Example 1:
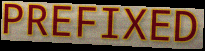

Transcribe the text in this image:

PREFIXED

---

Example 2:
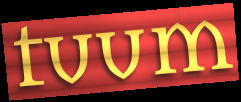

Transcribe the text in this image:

tuum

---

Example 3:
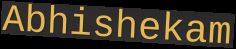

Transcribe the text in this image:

Abhishekam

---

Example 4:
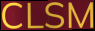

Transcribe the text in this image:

CLSM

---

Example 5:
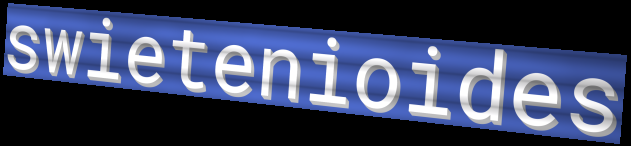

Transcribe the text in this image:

swietenioides